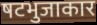
षटभुजाकार